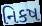
નિકષ